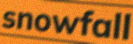
snowfall